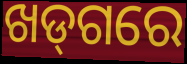
ଖଡ୍‌ଗରେ